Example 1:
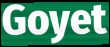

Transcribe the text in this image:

Goyet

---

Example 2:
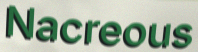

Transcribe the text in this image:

Nacreous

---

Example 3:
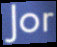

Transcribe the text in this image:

Jor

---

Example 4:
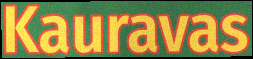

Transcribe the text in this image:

Kauravas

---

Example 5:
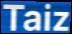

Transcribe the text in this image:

Taiz